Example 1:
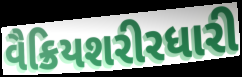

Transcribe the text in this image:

વૈક્રિયશરીરધારી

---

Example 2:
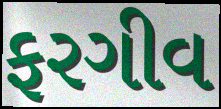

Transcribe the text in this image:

ફરગીવ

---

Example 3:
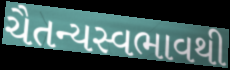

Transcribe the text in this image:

ચૈતન્યસ્વભાવથી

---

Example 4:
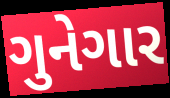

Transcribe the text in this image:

ગુનેગાર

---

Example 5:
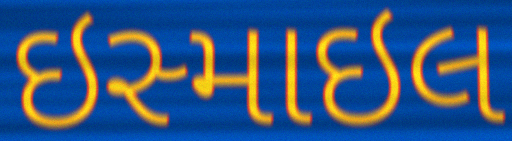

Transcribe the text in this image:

ઇસ્માઇલ